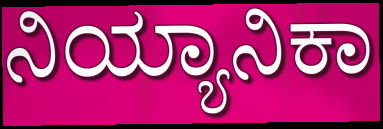
ನಿಯ್ಯಾನಿಕಾ